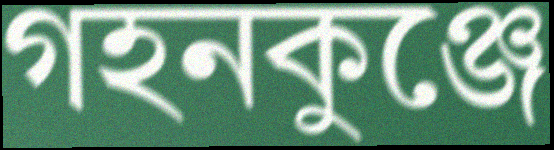
গহনকুঞ্জে